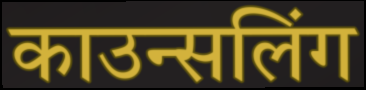
काउन्सलिंग